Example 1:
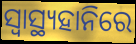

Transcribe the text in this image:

ସ୍ୱାସ୍ଥ୍ୟହାନିରେ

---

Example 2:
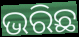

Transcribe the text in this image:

ଭରିଛ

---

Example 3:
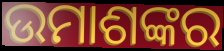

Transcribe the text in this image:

ଉମାଶଙ୍କର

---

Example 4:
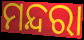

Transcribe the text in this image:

ମନ୍ଦରା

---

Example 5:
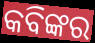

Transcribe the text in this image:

କବିଙ୍କର